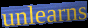
unlearns